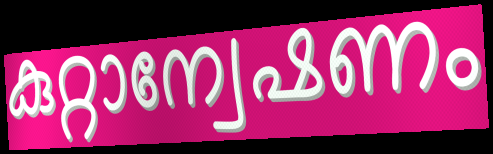
കുറ്റാന്വേഷണം